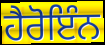
ਹੈਰੋਇੰਨ